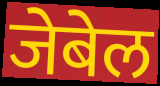
जेबेल